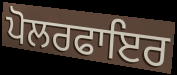
ਪੋਲਰਫਾਇਰ